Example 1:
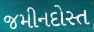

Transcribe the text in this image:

જમીનદોસ્ત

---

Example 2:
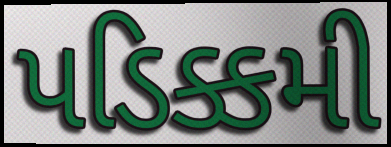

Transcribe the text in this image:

પડિક્કમી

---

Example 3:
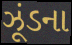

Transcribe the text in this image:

ઝૂંડના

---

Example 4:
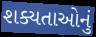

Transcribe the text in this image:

શક્યતાઓનું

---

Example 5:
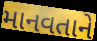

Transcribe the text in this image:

માનવતાને